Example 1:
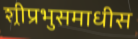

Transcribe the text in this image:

श्रीप्रभुसमाधीस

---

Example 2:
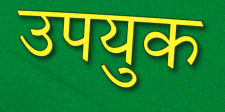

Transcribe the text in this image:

उपयुक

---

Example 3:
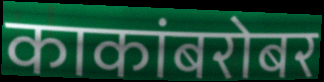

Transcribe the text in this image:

काकांबरोबर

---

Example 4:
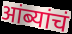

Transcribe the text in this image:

आंब्यांचं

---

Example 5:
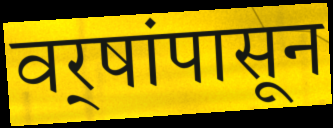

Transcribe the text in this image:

वर्षांपासून